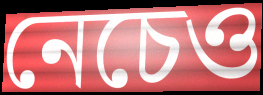
নেচেও